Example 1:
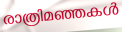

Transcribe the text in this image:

രാത്രിമഞ്ഞകൾ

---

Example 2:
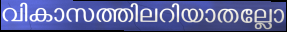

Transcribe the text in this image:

വികാസത്തിലറിയാതല്ലോ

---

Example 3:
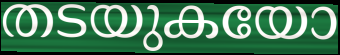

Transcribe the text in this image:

തടയുകയോ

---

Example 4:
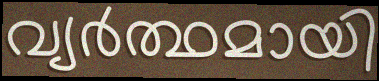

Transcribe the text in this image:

വ്യർത്ഥമായി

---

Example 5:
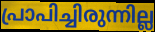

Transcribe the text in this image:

പ്രാപിച്ചിരുന്നില്ല